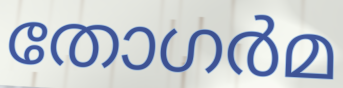
തോഗർമ